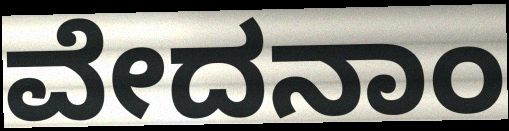
ವೇದನಾಂ